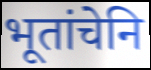
भूतांचेनि